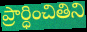
ప్రార్ధించితిని